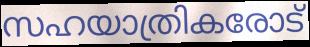
സഹയാത്രികരോട്